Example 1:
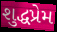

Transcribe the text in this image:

શુદ્ધપ્રેમ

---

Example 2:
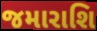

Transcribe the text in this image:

જમારાશિ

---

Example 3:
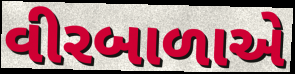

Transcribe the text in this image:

વીરબાળાએ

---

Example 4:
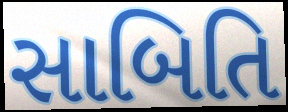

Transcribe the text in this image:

સાબિતિ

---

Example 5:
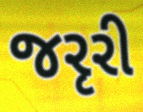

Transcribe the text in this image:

જરૃરી